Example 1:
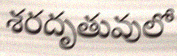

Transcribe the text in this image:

శరదృతువులో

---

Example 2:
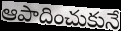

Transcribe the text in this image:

ఆపాదించుకునే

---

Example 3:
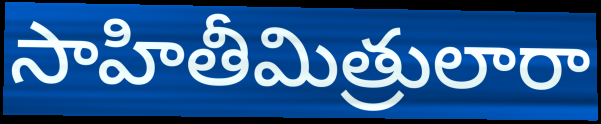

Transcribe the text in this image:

సాహితీమిత్రులారా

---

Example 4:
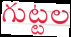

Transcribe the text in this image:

గుట్టల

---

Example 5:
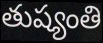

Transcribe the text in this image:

తుష్యంతి